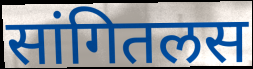
सांगितलस